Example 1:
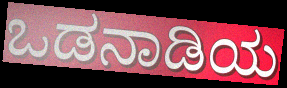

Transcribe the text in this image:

ಒಡನಾಡಿಯ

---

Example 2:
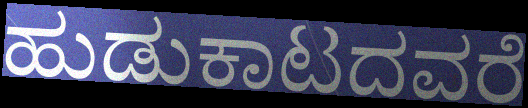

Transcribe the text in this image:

ಹುಡುಕಾಟದವರೆ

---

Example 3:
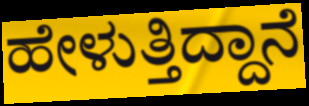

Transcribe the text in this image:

ಹೇಳುತ್ತಿದ್ದಾನೆ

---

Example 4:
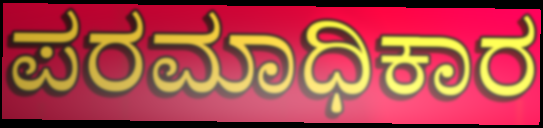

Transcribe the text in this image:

ಪರಮಾಧಿಕಾರ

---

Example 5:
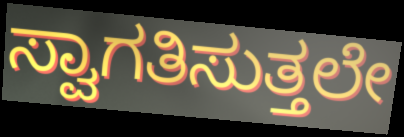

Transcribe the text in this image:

ಸ್ವಾಗತಿಸುತ್ತಲೇ